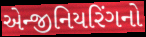
એન્જીનિયરિંગનો